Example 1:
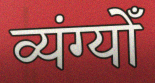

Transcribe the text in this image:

व्यंग्योँ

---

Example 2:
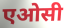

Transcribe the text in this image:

एओसी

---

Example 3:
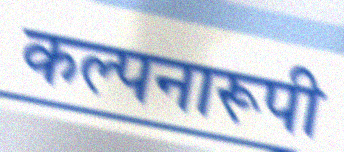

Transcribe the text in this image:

कल्पनारूपी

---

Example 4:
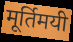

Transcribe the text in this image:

मूर्तिमयी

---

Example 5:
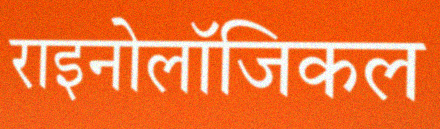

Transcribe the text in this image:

राइनोलॉजिकल